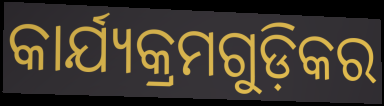
କାର୍ଯ୍ୟକ୍ରମଗୁଡ଼ିକର